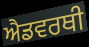
ਐਡਵਰਥੀ